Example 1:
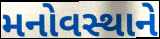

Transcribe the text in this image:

મનોવસ્થાને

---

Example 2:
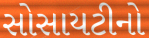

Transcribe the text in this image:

સોસાયટીનો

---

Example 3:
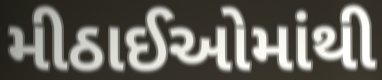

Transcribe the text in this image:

મીઠાઈઓમાંથી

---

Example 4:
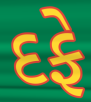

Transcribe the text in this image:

દફે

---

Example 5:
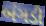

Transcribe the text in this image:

બંગડી